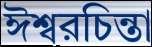
ঈশ্বরচিন্তা